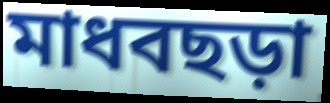
মাধবছড়া